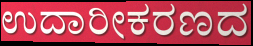
ಉದಾರೀಕರಣದ